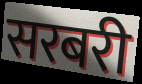
सरबरी